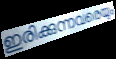
ഇരിക്കുന്നവരെയും